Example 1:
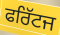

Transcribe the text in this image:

ਫਰਿੱਟਜ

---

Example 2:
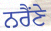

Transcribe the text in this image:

ਨਰੈਂਣੇ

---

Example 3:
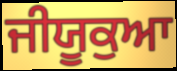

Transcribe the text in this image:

ਜੀਯੂਕੁਆ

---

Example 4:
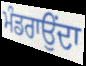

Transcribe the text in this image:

ਮੰਡਰਾਉਂਦਾ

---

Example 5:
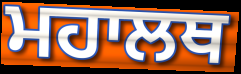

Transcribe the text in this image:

ਮਹਾਲਥ